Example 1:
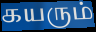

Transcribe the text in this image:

கயரும்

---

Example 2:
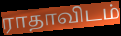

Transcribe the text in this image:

ராதாவிடம்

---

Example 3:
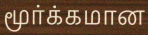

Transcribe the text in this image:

மூர்க்கமான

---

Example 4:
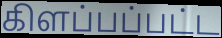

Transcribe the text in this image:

கிளப்பப்பட்ட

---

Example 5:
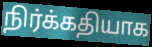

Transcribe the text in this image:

நிர்க்கதியாக